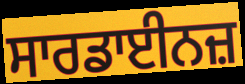
ਸਾਰਡਾਈਨਜ਼